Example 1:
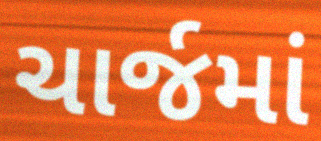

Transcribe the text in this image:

ચાર્જમાં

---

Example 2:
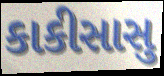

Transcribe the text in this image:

કાકીસાસુ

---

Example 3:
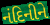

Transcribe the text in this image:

નંદિનીને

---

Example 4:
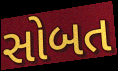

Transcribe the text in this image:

સોબત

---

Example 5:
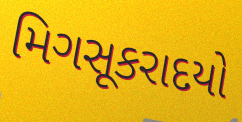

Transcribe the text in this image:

મિગસૂકરાદયો